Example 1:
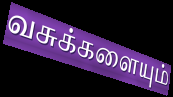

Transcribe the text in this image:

வசுக்களையும்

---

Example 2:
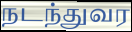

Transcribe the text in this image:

நடந்துவர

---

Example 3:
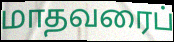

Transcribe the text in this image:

மாதவரைப்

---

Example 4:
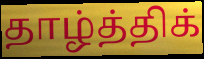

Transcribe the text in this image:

தாழ்த்திக்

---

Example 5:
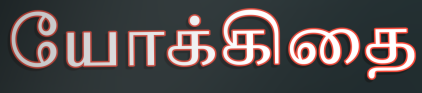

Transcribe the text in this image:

யோக்கிதை